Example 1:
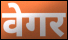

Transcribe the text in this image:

वेगर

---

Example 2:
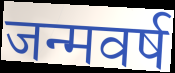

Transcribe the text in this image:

जन्मवर्ष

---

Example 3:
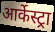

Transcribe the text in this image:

आर्केस्ट्रा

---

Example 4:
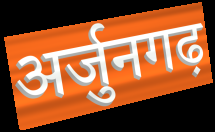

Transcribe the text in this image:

अर्जुनगढ़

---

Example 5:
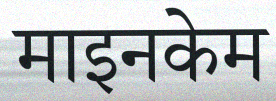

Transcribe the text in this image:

माइनकेम